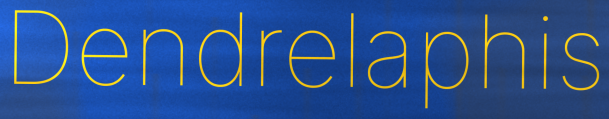
Dendrelaphis